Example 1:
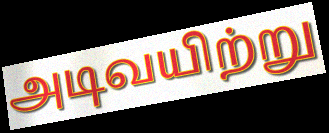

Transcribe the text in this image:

அடிவயிற்று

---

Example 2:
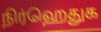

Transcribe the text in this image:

நிர்ஹெதுக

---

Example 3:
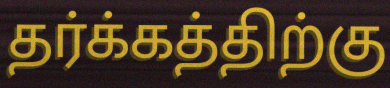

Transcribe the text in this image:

தர்க்கத்திற்கு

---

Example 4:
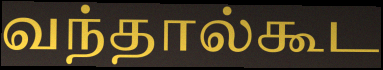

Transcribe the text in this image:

வந்தால்கூட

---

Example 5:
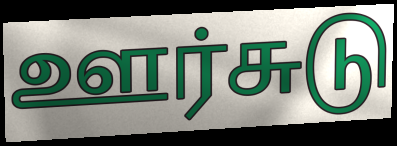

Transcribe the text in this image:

ஊர்சுடு